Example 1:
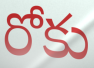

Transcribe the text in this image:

రోకు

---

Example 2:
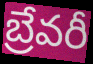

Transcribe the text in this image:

బ్రేవరీ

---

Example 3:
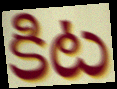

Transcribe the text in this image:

కిట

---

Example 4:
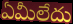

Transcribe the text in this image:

ఏమీలేదు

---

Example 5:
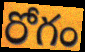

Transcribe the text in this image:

రోగం